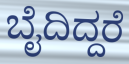
ಬೈದಿದ್ದರೆ